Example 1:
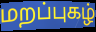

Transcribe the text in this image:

மறப்புகழ்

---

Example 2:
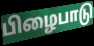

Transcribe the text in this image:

பிழைபாடு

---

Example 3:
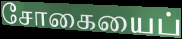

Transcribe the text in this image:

சோகையைப்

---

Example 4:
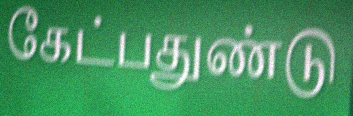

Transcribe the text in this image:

கேட்பதுண்டு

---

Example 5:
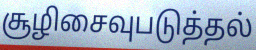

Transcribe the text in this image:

சூழிசைவுபடுத்தல்